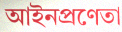
আইনপ্রণেতা